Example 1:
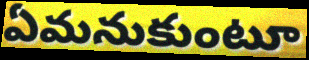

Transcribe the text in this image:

ఏమనుకుంటూ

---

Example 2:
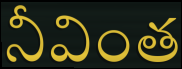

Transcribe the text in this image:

నీవింత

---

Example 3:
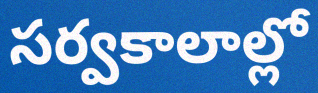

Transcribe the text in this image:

సర్వకాలాల్లో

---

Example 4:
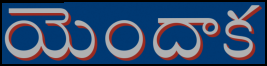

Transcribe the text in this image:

యెందాక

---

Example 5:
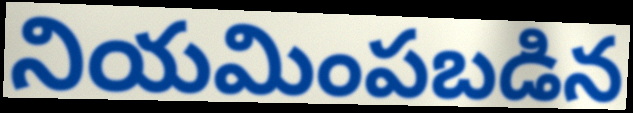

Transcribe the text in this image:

నియమింపబడిన